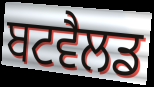
ਬਟਵੈਲਡ